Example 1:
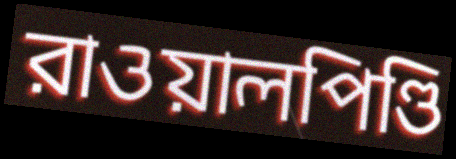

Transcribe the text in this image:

রাওয়ালপিণ্ডি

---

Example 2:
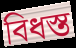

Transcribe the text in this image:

বিধস্ত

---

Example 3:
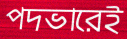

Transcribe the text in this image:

পদভারেই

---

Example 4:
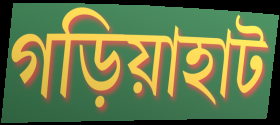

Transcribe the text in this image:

গড়িয়াহাট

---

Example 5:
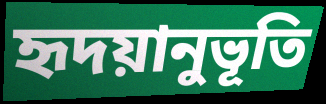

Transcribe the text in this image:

হৃদয়ানুভূতি